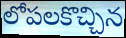
లోపలకొచ్చిన